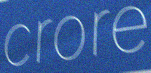
crore